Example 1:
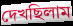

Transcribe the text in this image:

দেখছিলাম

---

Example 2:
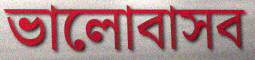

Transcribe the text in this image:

ভালোবাসব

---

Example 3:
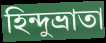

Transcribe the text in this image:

হিন্দুভ্রাতা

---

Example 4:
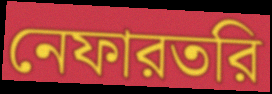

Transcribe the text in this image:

নেফারতরি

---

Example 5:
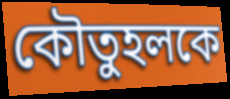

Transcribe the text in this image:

কৌতুহলকে